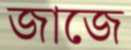
জাজে